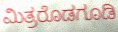
ಮಿತ್ರರೊಡಗೂಡಿ